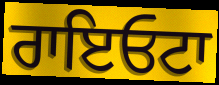
ਰਾਇਓਟਾ